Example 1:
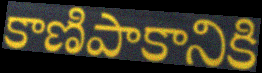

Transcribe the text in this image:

కాణిపాకానికి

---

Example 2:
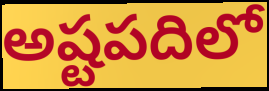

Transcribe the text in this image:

అష్టపదిలో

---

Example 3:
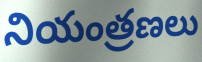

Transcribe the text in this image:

నియంత్రణలు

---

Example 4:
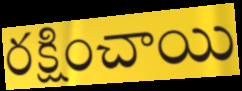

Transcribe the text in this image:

రక్షించాయి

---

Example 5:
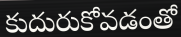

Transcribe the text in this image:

కుదురుకోవడంతో